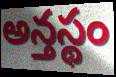
అన్తస్థం